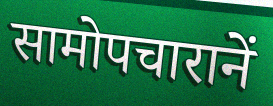
सामोपचारानें